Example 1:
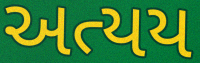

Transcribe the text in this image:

અત્યય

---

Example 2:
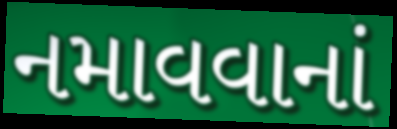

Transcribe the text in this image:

નમાવવાનાં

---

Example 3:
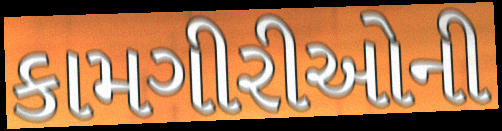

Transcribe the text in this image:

કામગીરીઓની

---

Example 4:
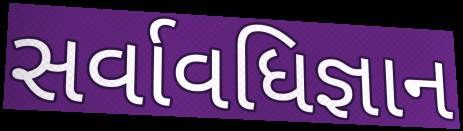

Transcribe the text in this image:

સર્વાવધિજ્ઞાન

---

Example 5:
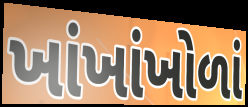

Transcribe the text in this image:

ખાંખાંખોળાં